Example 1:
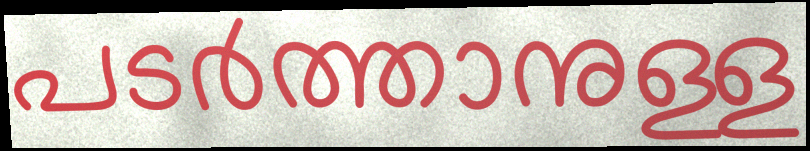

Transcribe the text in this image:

പടർത്താനുള്ള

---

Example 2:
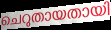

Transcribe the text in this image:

ചെറുതായതായി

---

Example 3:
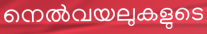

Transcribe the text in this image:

നെൽവയലുകളുടെ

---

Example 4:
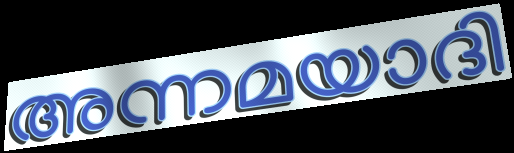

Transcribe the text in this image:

അന്നമയാദി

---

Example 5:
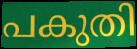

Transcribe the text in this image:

പകുതി